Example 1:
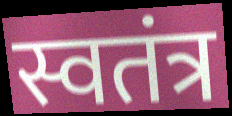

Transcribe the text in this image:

स्‍वतंत्र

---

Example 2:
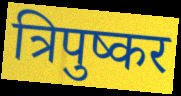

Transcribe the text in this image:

त्रिपुष्कर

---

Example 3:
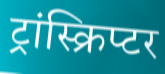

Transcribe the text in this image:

ट्रांस्क्रिप्टर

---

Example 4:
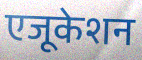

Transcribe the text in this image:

एजूकेशन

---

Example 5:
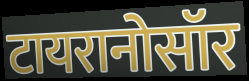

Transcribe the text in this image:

टायरानोसॉर